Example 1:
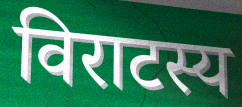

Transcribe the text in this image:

विराटस्य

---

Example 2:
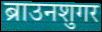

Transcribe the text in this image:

ब्राउनशुगर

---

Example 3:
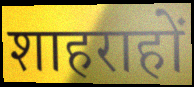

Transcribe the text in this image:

शाहराहों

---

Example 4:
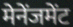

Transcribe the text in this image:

मेनेंजमेंट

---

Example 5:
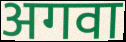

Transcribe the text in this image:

अगवा